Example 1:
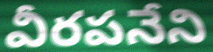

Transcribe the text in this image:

వీరపనేని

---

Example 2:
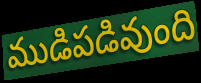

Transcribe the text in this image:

ముడిపడివుంది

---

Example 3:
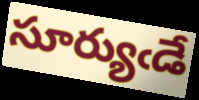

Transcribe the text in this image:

సూర్యుఁడే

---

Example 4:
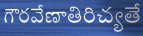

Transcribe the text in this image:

గౌరవేణాతిరిచ్యతే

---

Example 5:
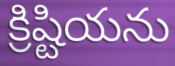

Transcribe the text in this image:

క్రిష్టియను